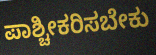
ಪಾಶ್ಚೀಕರಿಸಬೇಕು